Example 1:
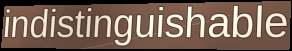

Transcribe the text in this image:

indistinguishable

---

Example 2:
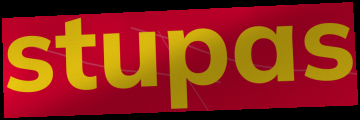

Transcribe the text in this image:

stupas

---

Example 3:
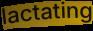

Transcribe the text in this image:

lactating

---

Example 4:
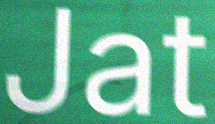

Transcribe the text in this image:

Jat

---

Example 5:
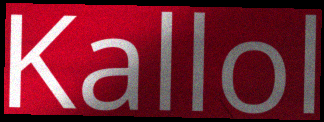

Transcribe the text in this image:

Kallol